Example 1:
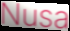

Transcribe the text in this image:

Nusa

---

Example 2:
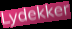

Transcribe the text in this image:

Lydekker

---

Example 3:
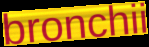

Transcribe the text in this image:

bronchii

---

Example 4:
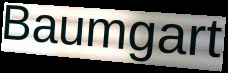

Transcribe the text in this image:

Baumgart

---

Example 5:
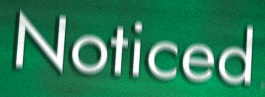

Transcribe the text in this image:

Noticed